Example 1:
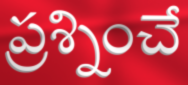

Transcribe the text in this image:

ప్రశ్నించే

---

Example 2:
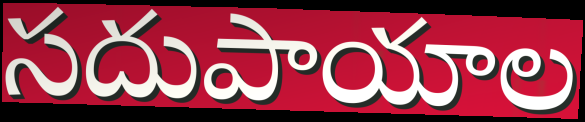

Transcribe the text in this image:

సదుపాయాల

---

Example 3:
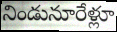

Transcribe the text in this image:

నిండునూరేళ్లూ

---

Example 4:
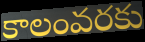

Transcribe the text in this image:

కాలంవరకు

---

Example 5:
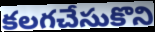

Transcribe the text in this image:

కలగచేసుకొని